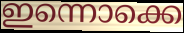
ഇന്നൊക്കെ